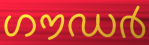
ഗൗഡർ